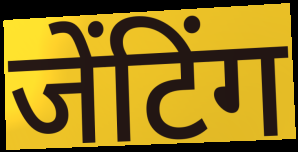
जेंटिंग